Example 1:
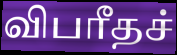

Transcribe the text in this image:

விபரீதச்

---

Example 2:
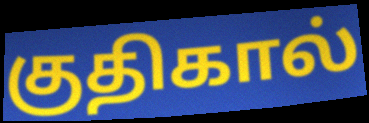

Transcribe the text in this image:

குதிகால்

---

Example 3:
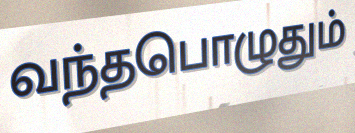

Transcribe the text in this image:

வந்தபொழுதும்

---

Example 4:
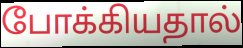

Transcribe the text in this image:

போக்கியதால்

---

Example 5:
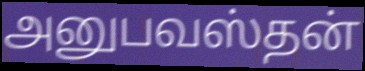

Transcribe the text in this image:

அனுபவஸ்தன்